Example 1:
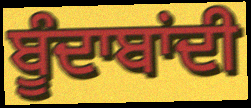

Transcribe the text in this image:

ਬੂੰਦਾਬਾਂਦੀ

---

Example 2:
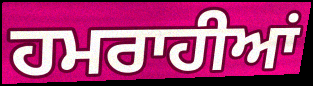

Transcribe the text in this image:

ਹਮਰਾਹੀਆਂ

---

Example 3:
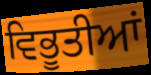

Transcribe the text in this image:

ਵਿਭੂਤੀਆਂ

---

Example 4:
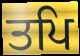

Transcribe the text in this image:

ਤਪਿ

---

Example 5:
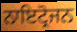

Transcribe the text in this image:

ਨਾਇਟ੍ਰੋਜਨ